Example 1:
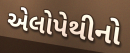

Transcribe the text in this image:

એલોપેથીનો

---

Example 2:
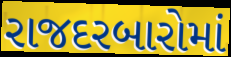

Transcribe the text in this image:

રાજદરબારોમાં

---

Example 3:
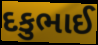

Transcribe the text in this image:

દકુભાઈ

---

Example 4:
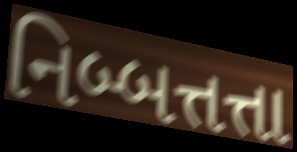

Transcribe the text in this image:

નિબ્બત્તત્તા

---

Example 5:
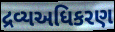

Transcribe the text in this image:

દ્રવ્યઅધિકરણ